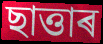
ছাত্তাৰ